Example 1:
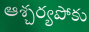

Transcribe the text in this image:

ఆశ్చర్యపోకు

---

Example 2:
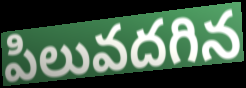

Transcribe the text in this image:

పిలువదగిన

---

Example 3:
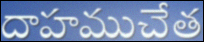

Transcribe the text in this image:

దాహముచేత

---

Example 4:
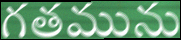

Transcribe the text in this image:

గతమును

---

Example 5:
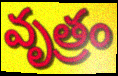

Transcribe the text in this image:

వృత్రం